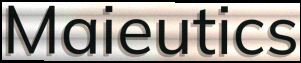
Maieutics